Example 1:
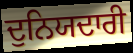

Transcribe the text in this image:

ਦੁਨਿਯਦਾਰੀ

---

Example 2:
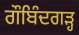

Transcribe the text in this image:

ਗੌਬਿੰਦਗੜ੍ਹ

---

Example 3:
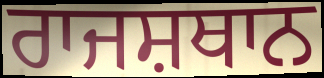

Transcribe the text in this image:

ਰਾਜਸ਼ਥਾਨ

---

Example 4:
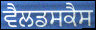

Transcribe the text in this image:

ਵੈਲਡਸਕੈਸ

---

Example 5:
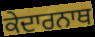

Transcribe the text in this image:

ਕੇਦਾਰਨਾਥ